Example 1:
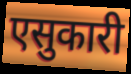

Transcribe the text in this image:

एसुकारी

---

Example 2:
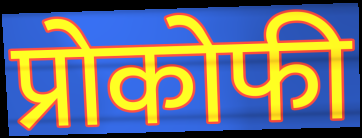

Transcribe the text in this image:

प्रोकोफी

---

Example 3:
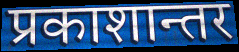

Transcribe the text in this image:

प्रकाशान्तर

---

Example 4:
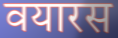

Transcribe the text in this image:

वयारस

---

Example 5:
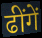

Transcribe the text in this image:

ढींगें